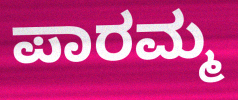
ಪಾರಮ್ಮ